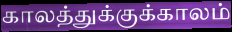
காலத்துக்குக்காலம்